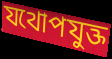
যথোপযুক্ত